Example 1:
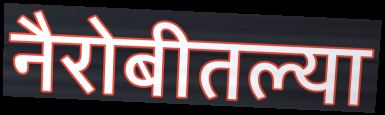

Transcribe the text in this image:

नैरोबीतल्या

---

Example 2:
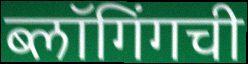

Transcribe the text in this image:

ब्लॉगिंगची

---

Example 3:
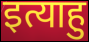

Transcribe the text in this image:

इत्याहु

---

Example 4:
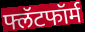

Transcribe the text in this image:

फ्लॅटफॉर्म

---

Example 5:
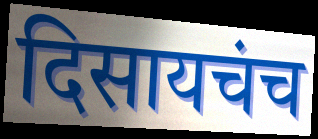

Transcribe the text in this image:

दिसायचंच